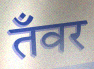
तँवर